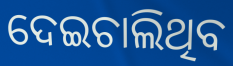
ଦେଇଚାଲିଥିବ